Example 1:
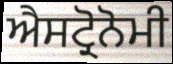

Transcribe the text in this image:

ਐਸਟ੍ਰੋਨੋਮੀ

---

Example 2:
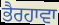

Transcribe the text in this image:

ਭੈਰਹਾਵਾ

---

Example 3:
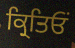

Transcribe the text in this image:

ਕ੍ਰਿਤਿਓਂ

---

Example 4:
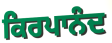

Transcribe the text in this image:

ਕਿਰਪਾਨੰਦ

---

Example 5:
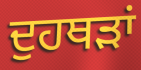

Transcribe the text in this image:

ਦੁਹਥੜਾਂ